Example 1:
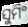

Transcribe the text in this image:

ସୁମିଂ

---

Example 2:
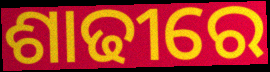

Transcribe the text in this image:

ଶାଢୀରେ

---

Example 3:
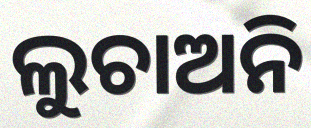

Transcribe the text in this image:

ଲୁଚାଅନି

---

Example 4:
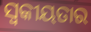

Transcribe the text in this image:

ସ୍ୱକୀୟତାର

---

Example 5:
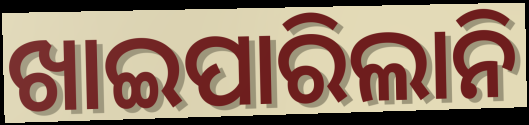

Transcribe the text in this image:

ଖାଇପାରିଲାନି